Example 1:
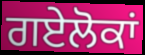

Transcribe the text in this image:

ਗਏਲੋਕਾਂ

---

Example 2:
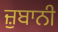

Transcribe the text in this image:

ਜ਼ੁਬਾਨੀ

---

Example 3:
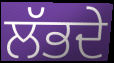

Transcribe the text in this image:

ਲੱਭਦੇ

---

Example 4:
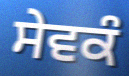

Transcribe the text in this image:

ਸੇਵਕੰ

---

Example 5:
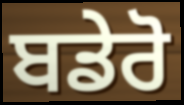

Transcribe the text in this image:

ਬਡੇਰੋ